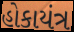
હોકાયંત્ર